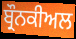
ਬ੍ਰੌਨਕੀਅਲ